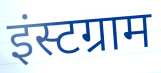
इंस्टग्राम